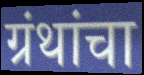
ग्रंथांचा